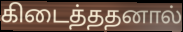
கிடைத்ததனால்